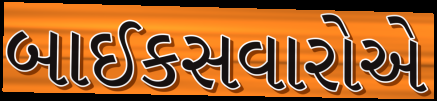
બાઈકસવારોએ